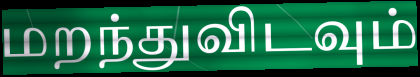
மறந்துவிடவும்